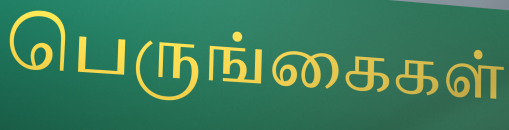
பெருங்கைகள்